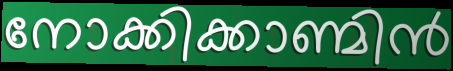
നോക്കിക്കാണ്മിൻ